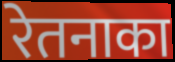
रेतनाका